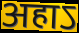
अहाऽ